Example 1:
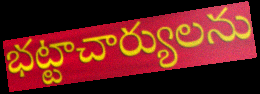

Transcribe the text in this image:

భట్టాచార్యులను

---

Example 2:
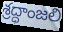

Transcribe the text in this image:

శ్రద్ధాంజలి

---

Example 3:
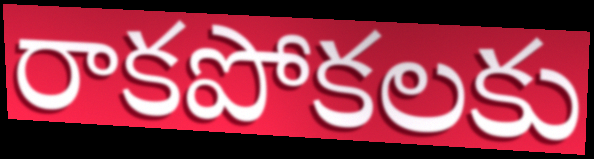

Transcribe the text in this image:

రాకపోకలకు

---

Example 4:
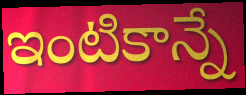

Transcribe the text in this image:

ఇంటికాన్నే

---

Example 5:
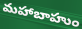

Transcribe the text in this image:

మహాబాహుం